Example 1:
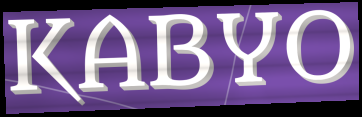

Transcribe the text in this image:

KABYO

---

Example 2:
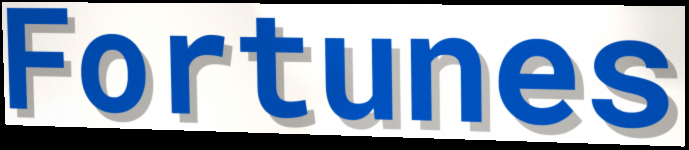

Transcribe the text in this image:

Fortunes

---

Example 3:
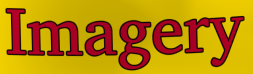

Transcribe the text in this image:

Imagery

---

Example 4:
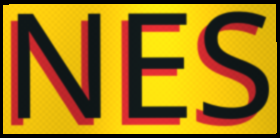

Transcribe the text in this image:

NES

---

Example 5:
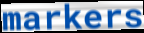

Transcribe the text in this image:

markers